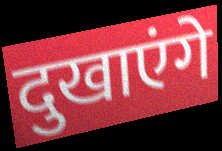
दुखाएंगे